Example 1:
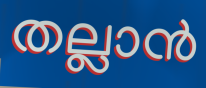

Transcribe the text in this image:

തല്ലാൻ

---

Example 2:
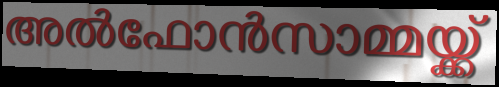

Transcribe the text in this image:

അൽഫോൻസാമ്മയ്ക്ക്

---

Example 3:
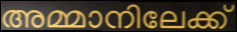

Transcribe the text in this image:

അമ്മാനിലേക്ക്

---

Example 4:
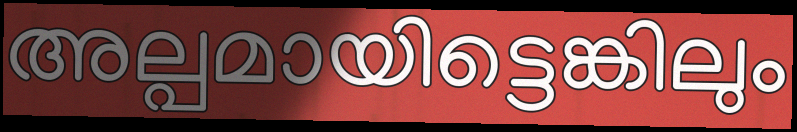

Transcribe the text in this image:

അല്പമായിട്ടെങ്കിലും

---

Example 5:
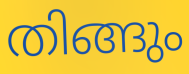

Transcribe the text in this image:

തിങ്ങും